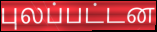
புலப்பட்டன